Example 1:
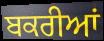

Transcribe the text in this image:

ਬਕਰੀਆਂ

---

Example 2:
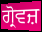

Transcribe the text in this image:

ਗ੍ਰੋਵਜ਼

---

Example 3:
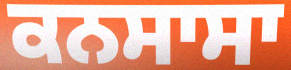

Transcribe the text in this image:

ਕਨਸਾਸਾ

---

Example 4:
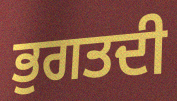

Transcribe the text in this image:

ਭੁਗਤਦੀ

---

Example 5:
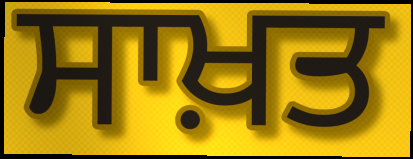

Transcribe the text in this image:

ਸਾਖ਼ਤ